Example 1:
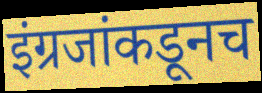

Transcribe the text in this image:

इंग्रजांकडूनच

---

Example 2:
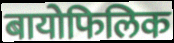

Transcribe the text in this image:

बायोफिलिक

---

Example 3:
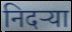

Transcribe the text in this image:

निदऱ्या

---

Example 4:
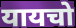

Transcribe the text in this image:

यायचो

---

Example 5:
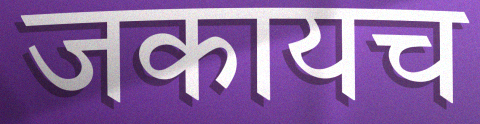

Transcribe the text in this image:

जकायच